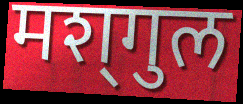
मश्गुल